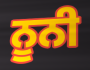
ਨੂਨੀ